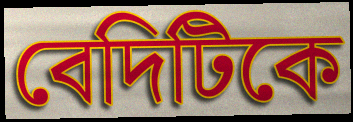
বেদিটিকে